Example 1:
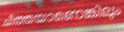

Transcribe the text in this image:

ചീത്തയാണെങ്കിലും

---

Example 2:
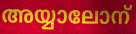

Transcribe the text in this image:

അയ്യാലോന്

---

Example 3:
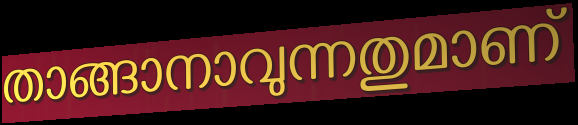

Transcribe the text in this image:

താങ്ങാനാവുന്നതുമാണ്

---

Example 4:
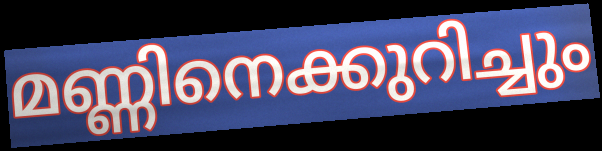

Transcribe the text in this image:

മണ്ണിനെക്കുറിച്ചും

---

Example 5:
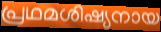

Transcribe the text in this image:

പ്രഥമശിഷ്യനായ